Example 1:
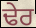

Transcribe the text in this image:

ਢੇਰ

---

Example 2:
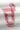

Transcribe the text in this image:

ਜੂੰ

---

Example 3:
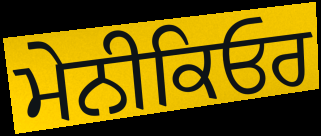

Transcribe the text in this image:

ਮੇਨੀਕਿਓਰ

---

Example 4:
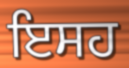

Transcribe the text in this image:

ਇਸਹ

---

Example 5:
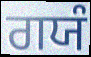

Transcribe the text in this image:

ਗਯੰ